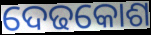
ଦେଢକୋଶ